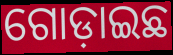
ଗୋଡ଼ାଇଛ